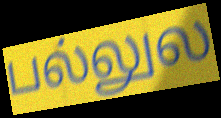
பல்லுல